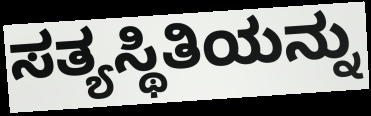
ಸತ್ಯಸ್ಥಿತಿಯನ್ನು